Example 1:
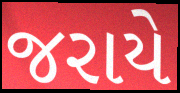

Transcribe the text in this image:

જરાયે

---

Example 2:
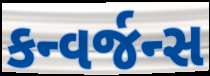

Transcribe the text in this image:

કન્વર્જન્સ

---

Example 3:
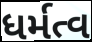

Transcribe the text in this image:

ધર્મત્વ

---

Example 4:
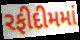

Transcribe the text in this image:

રફીદીમમાં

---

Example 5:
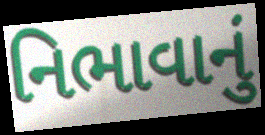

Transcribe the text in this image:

નિભાવાનું